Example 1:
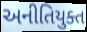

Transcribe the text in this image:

અનીતિયુક્ત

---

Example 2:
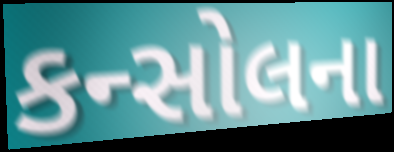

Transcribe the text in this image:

કન્સોલના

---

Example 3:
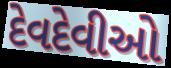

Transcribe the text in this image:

દેવદેવીઓ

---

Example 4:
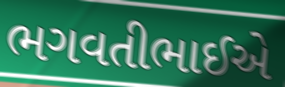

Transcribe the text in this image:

ભગવતીભાઈએ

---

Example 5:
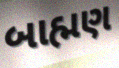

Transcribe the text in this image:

બાહ્મણ